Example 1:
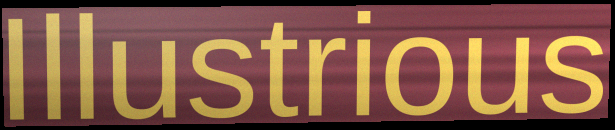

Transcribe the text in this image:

Illustrious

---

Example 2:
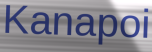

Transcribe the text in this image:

Kanapoi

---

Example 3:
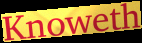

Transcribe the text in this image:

Knoweth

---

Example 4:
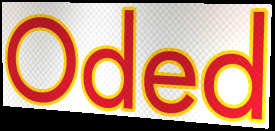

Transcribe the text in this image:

Oded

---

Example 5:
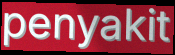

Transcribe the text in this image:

penyakit